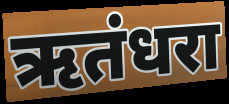
ऋतंधरा